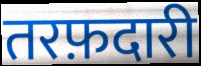
तरफ़दारी